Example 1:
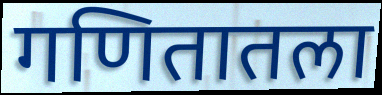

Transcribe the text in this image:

गणितातला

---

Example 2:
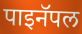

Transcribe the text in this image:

पाइनॅपल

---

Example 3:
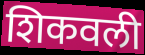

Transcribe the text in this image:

शिकवली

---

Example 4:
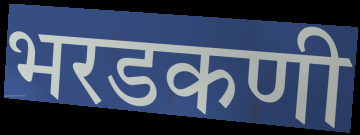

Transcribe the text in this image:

भरडकणी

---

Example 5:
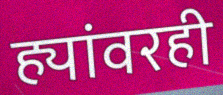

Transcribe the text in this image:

ह्यांवरही